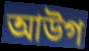
আউগ